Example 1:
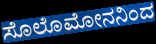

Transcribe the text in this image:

ಸೊಲೊಮೋನನಿಂದ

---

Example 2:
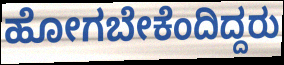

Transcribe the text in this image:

ಹೋಗಬೇಕೆಂದಿದ್ದರು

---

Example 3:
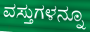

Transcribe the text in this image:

ವಸ್ತುಗಳನ್ನೂ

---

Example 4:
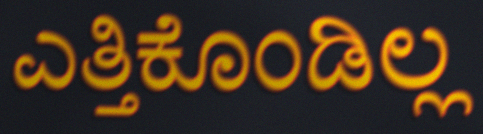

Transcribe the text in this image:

ಎತ್ತಿಕೊಂಡಿಲ್ಲ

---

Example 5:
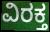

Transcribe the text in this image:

ವಿರಕ್ತ